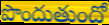
పొందుతుందో